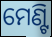
ମେଣ୍ଟି